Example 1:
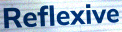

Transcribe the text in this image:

Reflexive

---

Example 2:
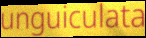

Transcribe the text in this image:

unguiculata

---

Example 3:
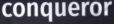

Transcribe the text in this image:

conqueror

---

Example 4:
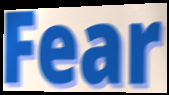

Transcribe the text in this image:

Fear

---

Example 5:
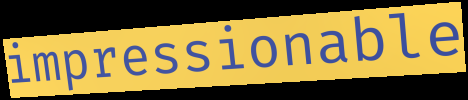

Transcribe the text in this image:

impressionable